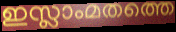
ഇസ്ലാംമതത്തെ